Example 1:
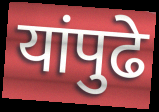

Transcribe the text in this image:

यांपुढे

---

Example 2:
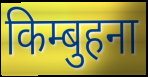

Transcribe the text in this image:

किम्बुहना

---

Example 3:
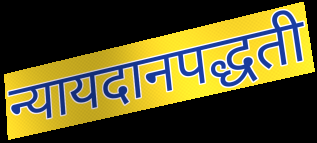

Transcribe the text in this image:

न्यायदानपद्धती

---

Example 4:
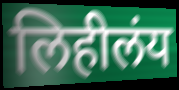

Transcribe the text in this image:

लिहीलंय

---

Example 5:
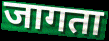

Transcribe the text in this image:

जागता